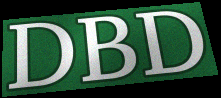
DBD